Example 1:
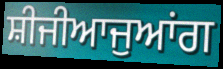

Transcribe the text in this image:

ਸ਼ੀਜੀਆਜੁਆਂਗ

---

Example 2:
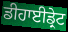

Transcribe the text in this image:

ਡੀਹਾਈਡ੍ਰੇਟ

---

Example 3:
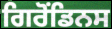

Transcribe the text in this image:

ਗਿਰੋਂਡਿਨਸ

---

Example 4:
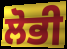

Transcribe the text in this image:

ਲੋਭੀ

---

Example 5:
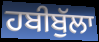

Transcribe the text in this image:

ਹਬੀਬੁੱਲਾ